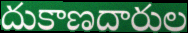
దుకాణదారుల